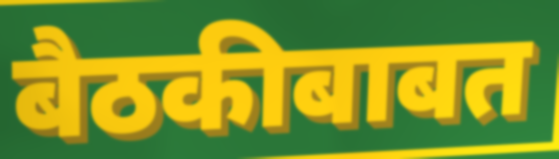
बैठकीबाबत